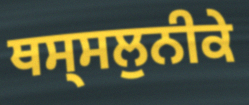
ਥਸ੍ਸਲੁਨੀਕੇ